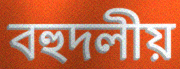
বহুদলীয়